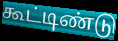
கூட்டிண்டு